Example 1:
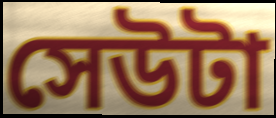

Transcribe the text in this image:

সেউটা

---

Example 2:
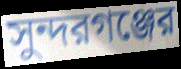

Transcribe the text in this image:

সুন্দরগঞ্জের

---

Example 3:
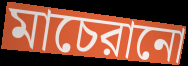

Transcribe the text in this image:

মাচেরানো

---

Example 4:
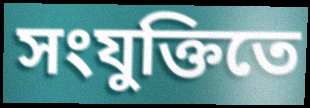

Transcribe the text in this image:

সংযুক্তিতে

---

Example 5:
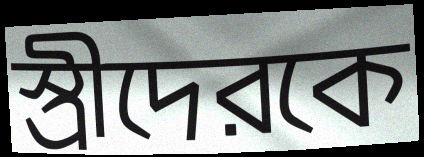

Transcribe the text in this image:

স্ত্রীদেরকে